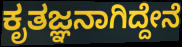
ಕೃತಜ್ಞನಾಗಿದ್ದೇನೆ